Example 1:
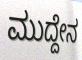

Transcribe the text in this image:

ಮುದ್ದೇನ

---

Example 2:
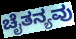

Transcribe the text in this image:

ಚೈತನ್ಯವು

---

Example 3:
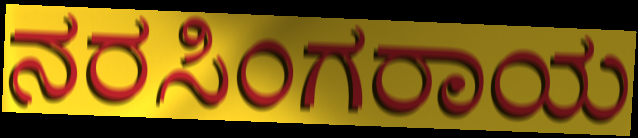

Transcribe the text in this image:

ನರಸಿಂಗರಾಯ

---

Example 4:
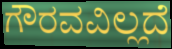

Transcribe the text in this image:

ಗೌರವವಿಲ್ಲದೆ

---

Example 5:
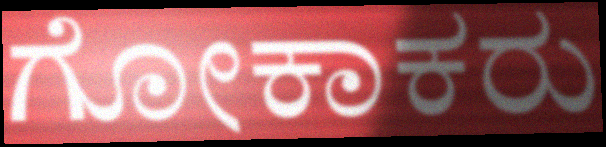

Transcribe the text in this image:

ಗೋಕಾಕರು